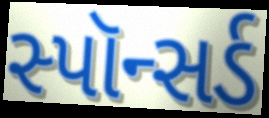
સ્પૉન્સર્ડ